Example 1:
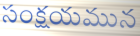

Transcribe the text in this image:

సంక్షయమున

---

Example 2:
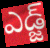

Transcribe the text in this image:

ఎడ్జ్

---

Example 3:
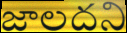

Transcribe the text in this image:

జాలదని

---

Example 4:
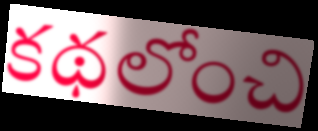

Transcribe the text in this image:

కథలోంచి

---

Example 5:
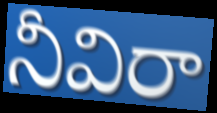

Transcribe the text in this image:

నీవిరా